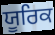
ਯੂਰਿਕ